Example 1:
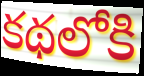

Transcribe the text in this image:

కథలోకి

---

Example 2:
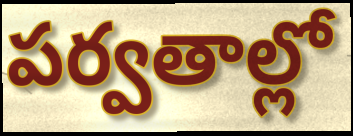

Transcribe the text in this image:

పర్వతాల్లో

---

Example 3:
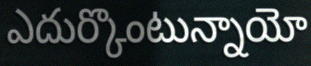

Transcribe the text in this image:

ఎదుర్కొంటున్నాయో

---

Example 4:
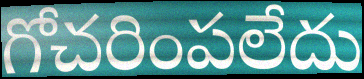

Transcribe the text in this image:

గోచరింపలేదు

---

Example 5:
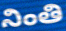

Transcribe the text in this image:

నింతి